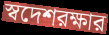
স্বদেশরক্ষার